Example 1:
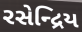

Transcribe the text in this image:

રસેન્દ્રિય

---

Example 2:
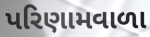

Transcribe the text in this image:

પરિણામવાળા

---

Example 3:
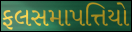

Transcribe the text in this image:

ફલસમાપત્તિયો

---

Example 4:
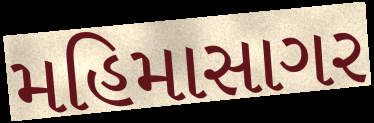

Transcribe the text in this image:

મહિમાસાગર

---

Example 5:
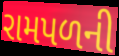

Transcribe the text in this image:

રામપળની